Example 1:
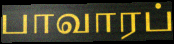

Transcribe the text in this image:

பாவாரப்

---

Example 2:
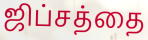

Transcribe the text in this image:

ஜிப்சத்தை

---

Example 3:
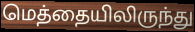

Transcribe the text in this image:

மெத்தையிலிருந்து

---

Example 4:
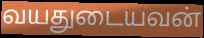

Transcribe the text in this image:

வயதுடையவன்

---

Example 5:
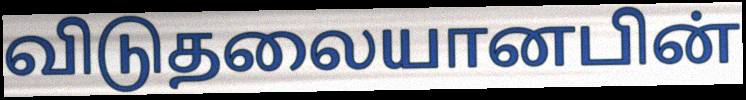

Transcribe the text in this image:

விடுதலையானபின்